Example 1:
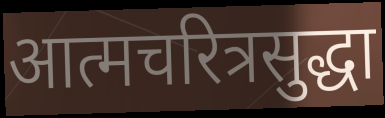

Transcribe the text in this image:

आत्मचरित्रसुद्धा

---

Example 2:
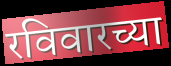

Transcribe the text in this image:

रविवारच्या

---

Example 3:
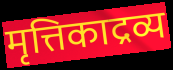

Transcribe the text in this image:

मृत्तिकाद्रव्य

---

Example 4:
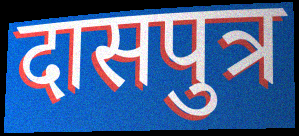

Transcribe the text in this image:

दासपुत्र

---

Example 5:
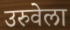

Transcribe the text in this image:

उरुवेला